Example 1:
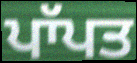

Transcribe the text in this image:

ਪਾੱਪਤ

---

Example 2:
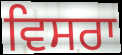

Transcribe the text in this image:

ਵਿਸਰਾ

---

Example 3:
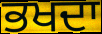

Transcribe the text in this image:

ਭਖਦਾ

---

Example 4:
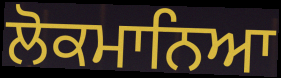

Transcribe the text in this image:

ਲੋਕਮਾਨਿਆ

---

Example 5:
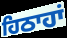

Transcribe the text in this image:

ਹਿਠਾਹਾਂ